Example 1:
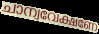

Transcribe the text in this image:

ചാന്വവേക്ഷണേ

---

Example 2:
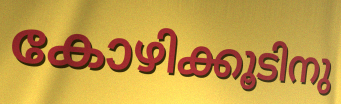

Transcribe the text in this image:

കോഴിക്കൂടിനു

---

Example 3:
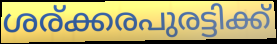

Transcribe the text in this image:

ശര്ക്കരപുരട്ടിക്ക്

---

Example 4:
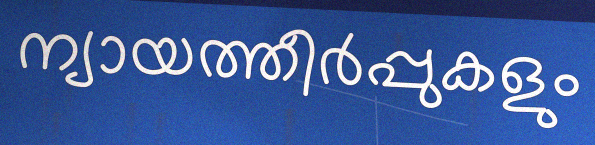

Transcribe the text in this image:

ന്യായത്തീർപ്പുകളും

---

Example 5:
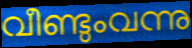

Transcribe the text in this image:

വീണ്ടുംവന്നു